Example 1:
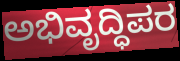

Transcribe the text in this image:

ಅಭಿವೃದ್ಧಿಪರ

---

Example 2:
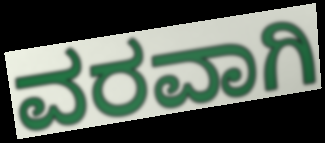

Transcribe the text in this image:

ವರವಾಗಿ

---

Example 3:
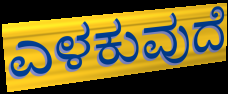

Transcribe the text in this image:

ಎಳಕುವುದೆ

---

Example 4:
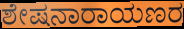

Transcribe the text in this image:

ಶೇಷನಾರಾಯಣರ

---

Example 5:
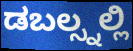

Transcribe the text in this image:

ಡಬಲ್ಸ್ನಲ್ಲಿ